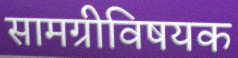
सामग्रीविषयक